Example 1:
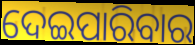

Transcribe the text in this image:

ଦେଇପାରିବାର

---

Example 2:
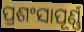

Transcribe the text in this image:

ପ୍ରଶଂସାପୂର୍ଣ୍ଣ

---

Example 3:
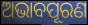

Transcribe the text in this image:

ଅଭାବପୂରଣ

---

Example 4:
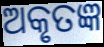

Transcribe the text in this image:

ଅକୃତଜ୍ଞ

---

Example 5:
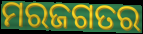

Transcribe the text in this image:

ମରଜଗତର